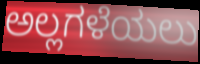
ಅಲ್ಲಗಳೆಯಲು